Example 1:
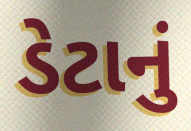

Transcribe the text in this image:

ડેટાનું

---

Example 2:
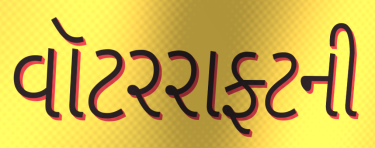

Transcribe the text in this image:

વૉટરરાફ્ટની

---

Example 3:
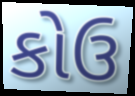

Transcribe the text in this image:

કોઉ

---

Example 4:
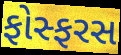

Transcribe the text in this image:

ફોસ્ફરસ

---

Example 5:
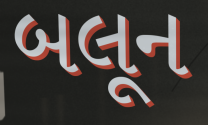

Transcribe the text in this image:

બલૂન